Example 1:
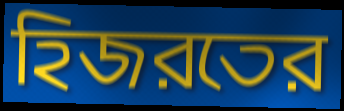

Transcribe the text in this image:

হিজরতের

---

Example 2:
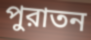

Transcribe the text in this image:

পুরাতন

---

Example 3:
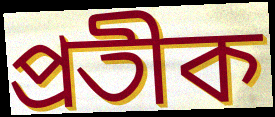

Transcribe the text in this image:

প্রতীক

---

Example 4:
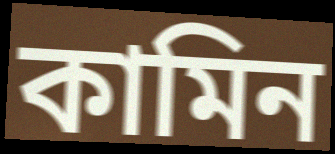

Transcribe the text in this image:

কামিন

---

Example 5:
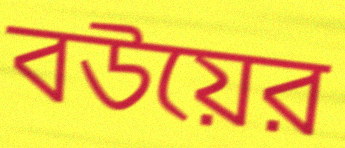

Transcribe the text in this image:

বউয়ের